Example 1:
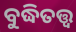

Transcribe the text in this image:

ବୁଦ୍ଧିତତ୍ତ୍ବ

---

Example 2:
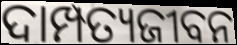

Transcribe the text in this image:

ଦାମ୍ପତ୍ୟଜୀବନ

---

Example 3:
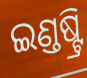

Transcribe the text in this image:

ଇଣ୍ଡଷ୍ଟ୍ରି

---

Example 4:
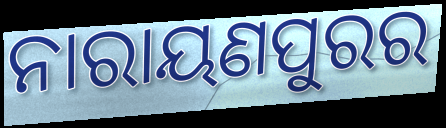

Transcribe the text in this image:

ନାରାୟଣପୁରର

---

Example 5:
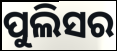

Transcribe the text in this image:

ପୁଲିସର